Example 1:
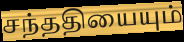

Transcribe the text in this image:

சந்ததியையும்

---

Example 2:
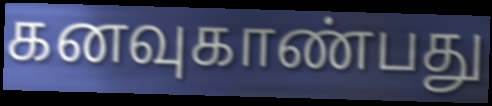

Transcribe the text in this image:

கனவுகாண்பது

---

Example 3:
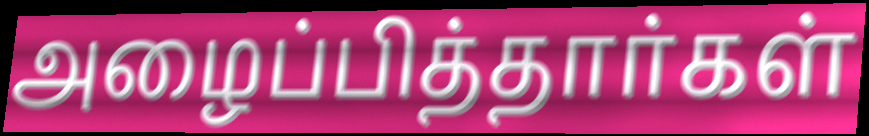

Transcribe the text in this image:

அழைப்பித்தார்கள்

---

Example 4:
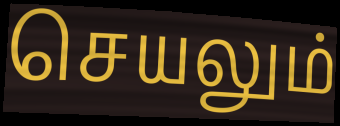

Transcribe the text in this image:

செயலும்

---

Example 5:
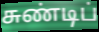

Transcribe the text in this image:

சுண்டிப்